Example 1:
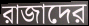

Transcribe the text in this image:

রাজাদের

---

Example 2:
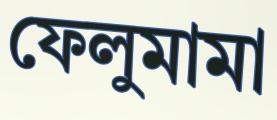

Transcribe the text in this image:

ফেলুমামা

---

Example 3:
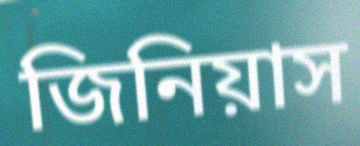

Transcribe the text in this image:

জিনিয়াস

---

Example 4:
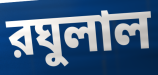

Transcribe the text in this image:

রঘুলাল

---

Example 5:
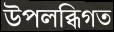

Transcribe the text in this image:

উপলব্ধিগত